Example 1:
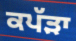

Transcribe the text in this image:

ਕਪੱੜਾ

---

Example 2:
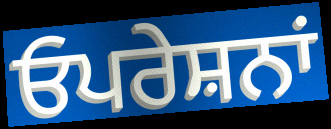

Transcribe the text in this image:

ਓਪਰੇਸ਼ਨਾਂ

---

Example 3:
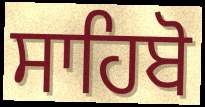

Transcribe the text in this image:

ਸਾਹਿਬੋ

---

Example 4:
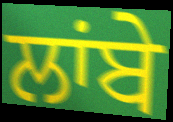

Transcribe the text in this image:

ਲਾਂਬੇ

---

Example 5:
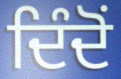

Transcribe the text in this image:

ਦਿੰਦੋਂ